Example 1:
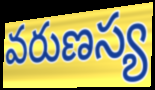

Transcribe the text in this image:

వరుణస్య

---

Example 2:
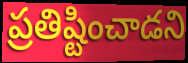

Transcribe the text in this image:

ప్రతిష్టించాడని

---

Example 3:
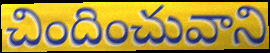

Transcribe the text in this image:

చిందించువాని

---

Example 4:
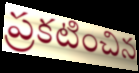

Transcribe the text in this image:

ప్రకటించిన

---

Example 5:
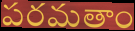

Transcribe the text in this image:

పరమతాం